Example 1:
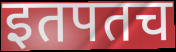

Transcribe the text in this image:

इतपतच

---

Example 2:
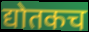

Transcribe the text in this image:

द्योतकच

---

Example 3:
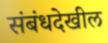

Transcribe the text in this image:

संबंधदेखील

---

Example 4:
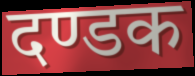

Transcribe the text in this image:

दण्डक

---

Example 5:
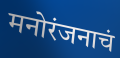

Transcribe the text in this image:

मनोरंजनाचं